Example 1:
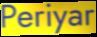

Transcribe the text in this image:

Periyar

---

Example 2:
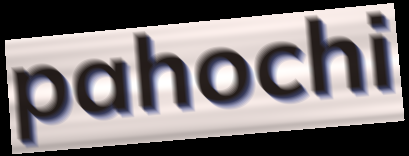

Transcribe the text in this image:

pahochi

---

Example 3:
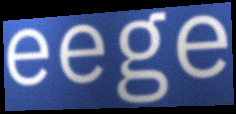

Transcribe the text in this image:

eege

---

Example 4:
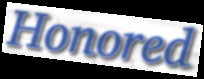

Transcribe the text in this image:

Honored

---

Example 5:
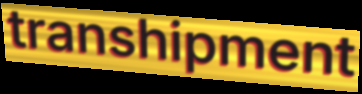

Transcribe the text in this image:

transhipment